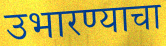
उभारण्याचा